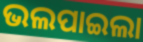
ଭଲପାଇଲା